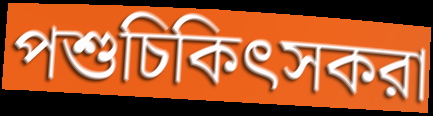
পশুচিকিৎসকরা